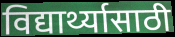
विद्यार्थ्यासाठी